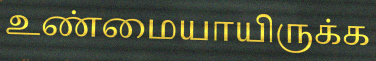
உண்மையாயிருக்க